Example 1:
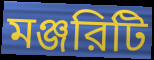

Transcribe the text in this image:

মঞ্জরিটি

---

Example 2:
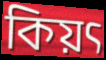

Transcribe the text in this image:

কিয়ৎ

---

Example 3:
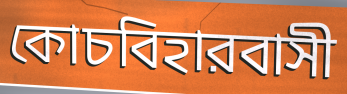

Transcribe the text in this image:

কোচবিহারবাসী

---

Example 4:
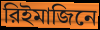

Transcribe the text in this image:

রিইমাজিনে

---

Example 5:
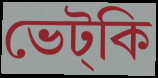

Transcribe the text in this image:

ভেট্কি